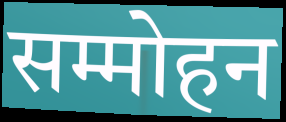
सम्मोहन